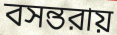
বসন্তরায়